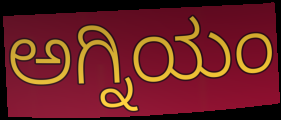
ಅಗ್ನಿಯಂ